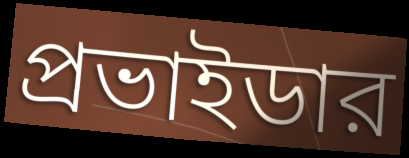
প্রভাইডার